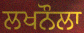
ਲਖਨੌਲਾ